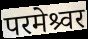
परमेश्र्वर